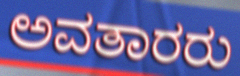
ಅವತಾರರು